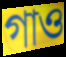
গাও